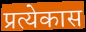
प्रत्येकास